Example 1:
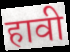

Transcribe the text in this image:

हावी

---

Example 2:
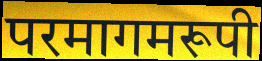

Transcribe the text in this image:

परमागमरूपी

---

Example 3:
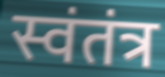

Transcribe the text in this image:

स्वंतंत्र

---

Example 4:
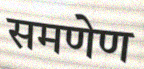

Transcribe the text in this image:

समणेण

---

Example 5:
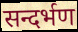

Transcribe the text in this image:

सन्दर्भण